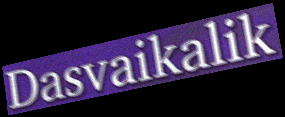
Dasvaikalik